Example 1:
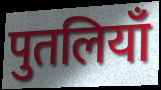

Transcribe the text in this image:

पुतलियाँ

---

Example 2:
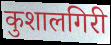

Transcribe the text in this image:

कुशालगिरी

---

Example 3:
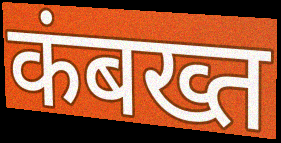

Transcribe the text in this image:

कंबख्त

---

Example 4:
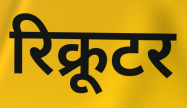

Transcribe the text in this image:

रिक्रूटर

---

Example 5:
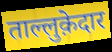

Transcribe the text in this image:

ताल्लुक़ेदार